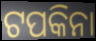
ଟପକିନା